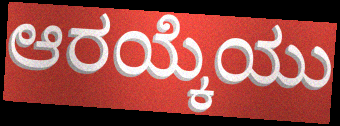
ಆರಯ್ಕೆಯು